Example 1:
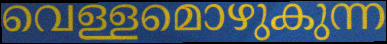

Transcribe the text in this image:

വെള്ളമൊഴുകുന്ന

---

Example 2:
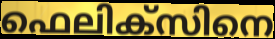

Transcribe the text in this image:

ഫെലിക്സിനെ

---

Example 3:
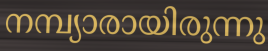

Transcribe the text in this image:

നമ്പ്യാരായിരുന്നു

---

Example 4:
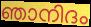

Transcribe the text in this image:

ഞാനിദം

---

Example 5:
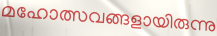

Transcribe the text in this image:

മഹോത്സവങ്ങളായിരുന്നു